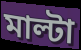
মাল্টা